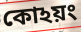
কোঽয়ং